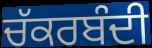
ਚੱਕਰਬੰਦੀ